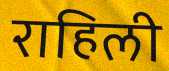
राहिली